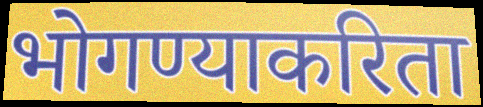
भोगण्याकरिता